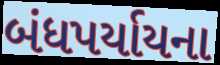
બંધપર્યાયના